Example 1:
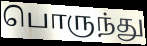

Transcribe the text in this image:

பொருந்து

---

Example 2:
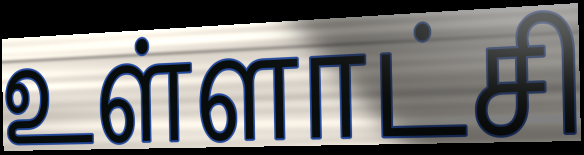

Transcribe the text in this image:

உள்ளாட்சி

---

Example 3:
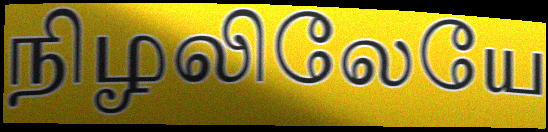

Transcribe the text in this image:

நிழலிலேயே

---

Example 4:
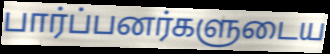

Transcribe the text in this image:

பார்ப்பனர்களுடைய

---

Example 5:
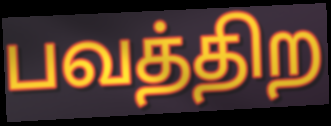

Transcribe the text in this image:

பவத்திற